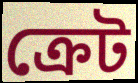
ক্রেট